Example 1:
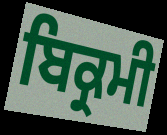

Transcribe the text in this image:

ਬਿਕ੍ਰਮੀ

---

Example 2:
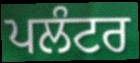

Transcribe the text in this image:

ਪਲੰਟਰ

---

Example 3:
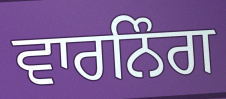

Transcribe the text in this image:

ਵਾਰਨਿੰਗ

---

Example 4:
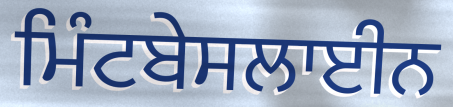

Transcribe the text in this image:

ਮਿੰਟਬੇਸਲਾਈਨ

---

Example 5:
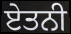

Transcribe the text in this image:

ਏਤਨੀ